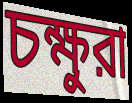
চক্ষুরা